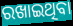
ରଖାଇଥିବା